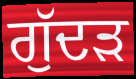
ਗੁੱਦੜ